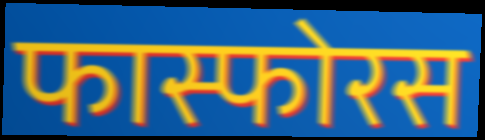
फास्फोरस